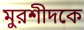
মুরশীদকে